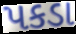
પકડા